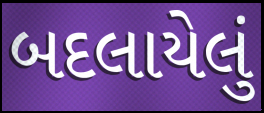
બદલાયેલું